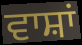
ਵਾਸ਼ਾਂ